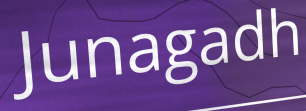
Junagadh